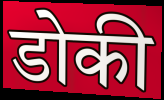
डोकी